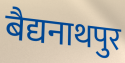
बैद्यनाथपुर